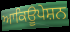
ਆਕਿਊਪੇਸ਼ਨ